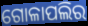
ଗୋଳାପଲିର